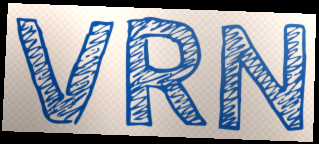
VRN